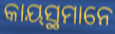
କାୟସ୍ଥମାନେ